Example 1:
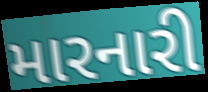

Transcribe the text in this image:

મારનારી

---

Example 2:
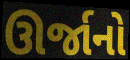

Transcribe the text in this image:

ઊર્જાનો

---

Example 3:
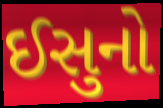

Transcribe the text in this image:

ઈસુનો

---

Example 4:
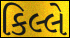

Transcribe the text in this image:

કિલ્લે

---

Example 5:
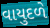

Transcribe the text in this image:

વાયુદળે